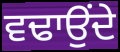
ਵਢਾਉਂਦੇ